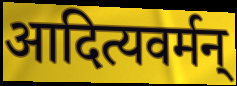
आदित्यवर्मन्